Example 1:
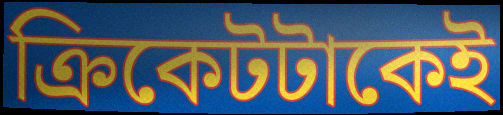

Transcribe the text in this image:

ক্রিকেটটাকেই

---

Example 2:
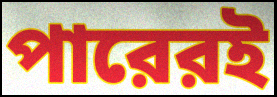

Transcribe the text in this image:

পারেরই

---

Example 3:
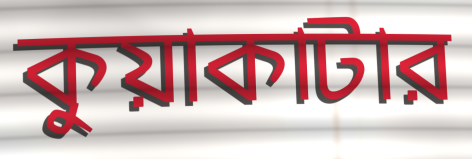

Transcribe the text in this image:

কুয়াকাটার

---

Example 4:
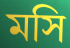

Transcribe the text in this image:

মসি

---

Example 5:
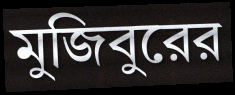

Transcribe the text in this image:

মুজিবুরের